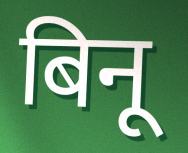
बिनू